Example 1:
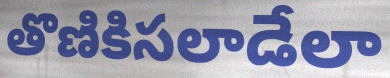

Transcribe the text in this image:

తొణికిసలాడేలా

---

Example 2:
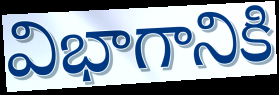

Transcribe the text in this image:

విభాగానికి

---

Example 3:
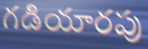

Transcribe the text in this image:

గడియారపు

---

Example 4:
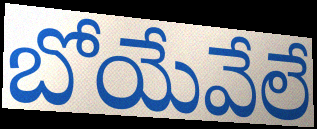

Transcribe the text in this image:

బోయేవేలే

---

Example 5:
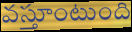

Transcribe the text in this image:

వస్తూంటుంది